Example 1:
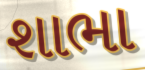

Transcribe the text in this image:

શાભા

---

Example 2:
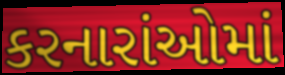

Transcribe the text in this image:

કરનારાંઓમાં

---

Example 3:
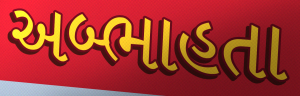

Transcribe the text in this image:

અબ્ભાહતા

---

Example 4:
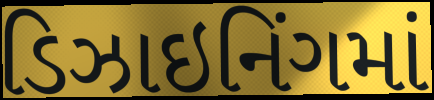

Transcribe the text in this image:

ડિઝાઇનિંગમાં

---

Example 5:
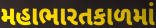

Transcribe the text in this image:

મહાભારતકાળમાં